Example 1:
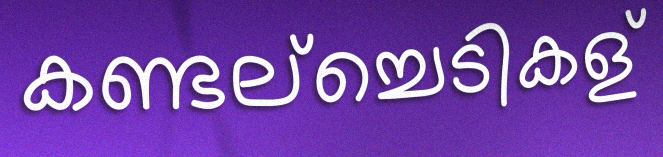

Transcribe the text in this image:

കണ്ടല്ച്ചെടികള്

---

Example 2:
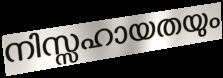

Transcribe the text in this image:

നിസ്സഹായതയും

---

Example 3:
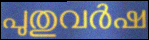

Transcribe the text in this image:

പുതുവർഷ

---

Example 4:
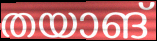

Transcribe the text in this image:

തയാങ്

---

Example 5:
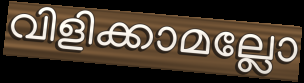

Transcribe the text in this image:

വിളിക്കാമല്ലോ